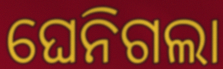
ଘେନିଗଲା